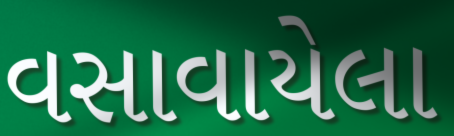
વસાવાયેલા